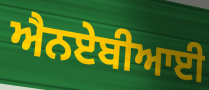
ਐਨਏਬੀਆਈ